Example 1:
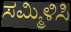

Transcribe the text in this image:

ಸಮ್ಮಿಳಿಸಿ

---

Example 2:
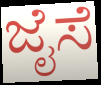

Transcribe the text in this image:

ಜೈಸೆ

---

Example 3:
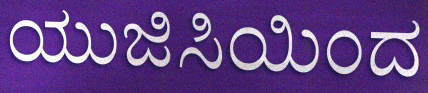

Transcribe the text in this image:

ಯುಜಿಸಿಯಿಂದ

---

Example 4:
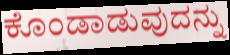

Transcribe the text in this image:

ಕೊಂಡಾಡುವುದನ್ನು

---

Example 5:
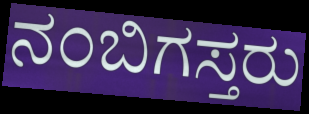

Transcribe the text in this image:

ನಂಬಿಗಸ್ತರು